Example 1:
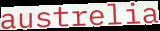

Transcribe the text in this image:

austrelia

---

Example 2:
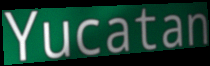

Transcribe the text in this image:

Yucatan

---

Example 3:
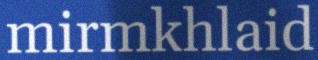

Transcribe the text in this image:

mirmkhlaid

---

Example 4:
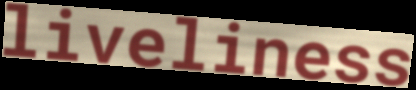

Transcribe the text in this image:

liveliness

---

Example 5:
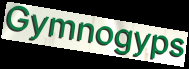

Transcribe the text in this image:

Gymnogyps